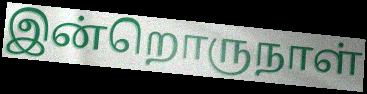
இன்றொருநாள்